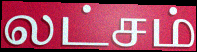
லட்சம்